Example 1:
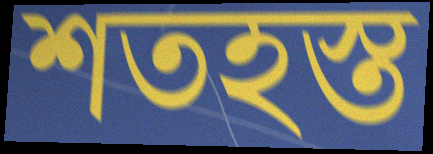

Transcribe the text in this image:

শতহস্ত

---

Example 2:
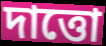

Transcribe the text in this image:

দাত্তো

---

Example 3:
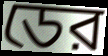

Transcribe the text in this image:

ডের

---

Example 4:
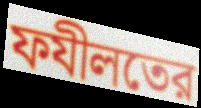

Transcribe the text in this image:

ফযীলতের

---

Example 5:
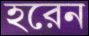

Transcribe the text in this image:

হরেন